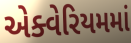
એક્વેરિયમમાં